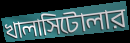
খালাসিটোলার